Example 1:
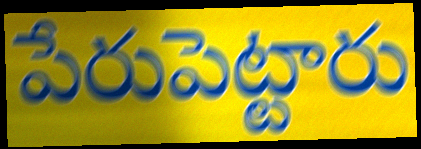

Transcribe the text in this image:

పేరుపెట్టారు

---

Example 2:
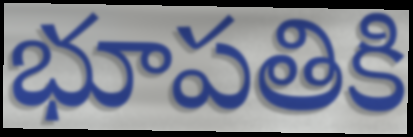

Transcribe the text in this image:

భూపతికి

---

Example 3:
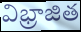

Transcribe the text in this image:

విభ్రాజిత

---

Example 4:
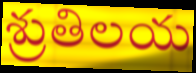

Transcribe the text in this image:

శ్రుతిలయ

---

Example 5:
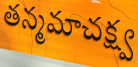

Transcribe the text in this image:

తన్మమాచక్ష్వ